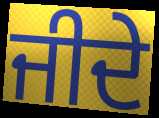
ਜੀਦੇ